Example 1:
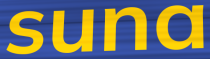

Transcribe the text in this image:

suna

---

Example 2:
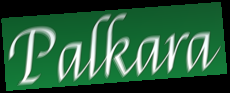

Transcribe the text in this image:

Palkara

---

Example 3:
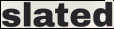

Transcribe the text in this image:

slated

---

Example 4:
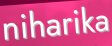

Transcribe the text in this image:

niharika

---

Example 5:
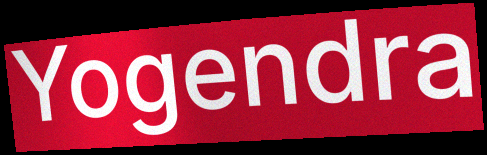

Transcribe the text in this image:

Yogendra